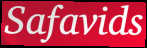
Safavids